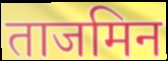
ताजमिन